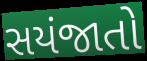
સયંજાતો